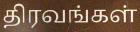
திரவங்கள்